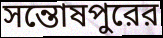
সন্তোষপুরের